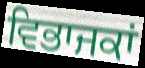
ਵਿਭਾਜਕਾਂ